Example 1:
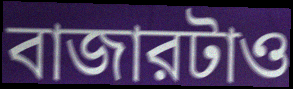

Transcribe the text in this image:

বাজারটাও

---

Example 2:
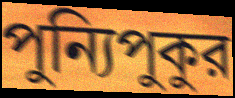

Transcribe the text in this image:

পুন্যিপুকুর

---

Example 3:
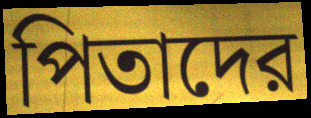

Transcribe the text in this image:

পিতাদের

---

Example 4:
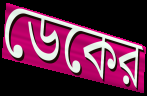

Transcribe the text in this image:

ডেকের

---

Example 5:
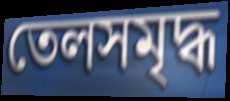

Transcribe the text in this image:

তেলসমৃদ্ধ